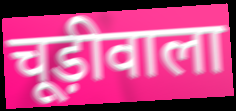
चूड़ीवाला